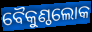
ବୈକୁଣ୍ଠଲୋକ